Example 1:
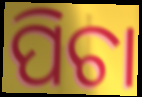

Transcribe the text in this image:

ପିଚା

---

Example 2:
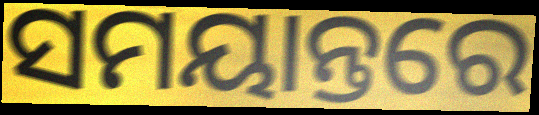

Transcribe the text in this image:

ସମୟାନ୍ତରେ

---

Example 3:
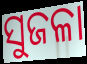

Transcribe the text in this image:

ସୁଜଳା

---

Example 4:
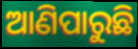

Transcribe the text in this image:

ଆଣିପାରୁଛି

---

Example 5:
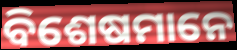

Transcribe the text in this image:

ବିଶେଷମାନେ